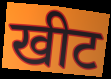
खीट